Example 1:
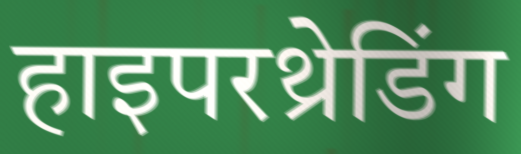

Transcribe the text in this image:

हाइपरथ्रेडिंग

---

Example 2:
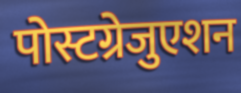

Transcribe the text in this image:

पोस्टग्रेजुएशन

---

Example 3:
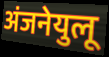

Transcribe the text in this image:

अंजनेयुलू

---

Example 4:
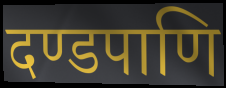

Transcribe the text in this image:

दण्डपाणि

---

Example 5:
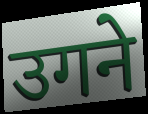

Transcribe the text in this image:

उगने